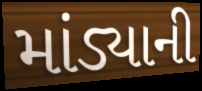
માંડ્યાની